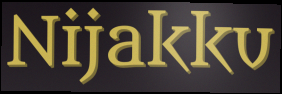
Nijakku